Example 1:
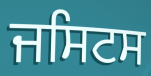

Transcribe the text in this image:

ਜਸਿਟਸ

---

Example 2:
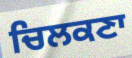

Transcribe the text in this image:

ਚਿਲਕਣਾ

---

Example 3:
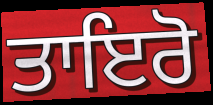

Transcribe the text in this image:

ਤਾਇਰੋ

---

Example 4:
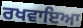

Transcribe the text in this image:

ਰਖਵਾਇਆ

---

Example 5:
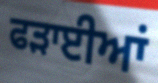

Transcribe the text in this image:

ਫੜਾਈਆਂ